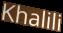
Khalili